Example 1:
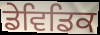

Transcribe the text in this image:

ਡੇਵਿਡਿਕ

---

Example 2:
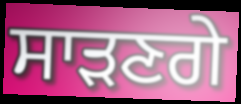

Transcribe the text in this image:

ਸਾੜਣਗੇ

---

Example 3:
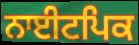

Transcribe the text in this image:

ਨਾਈਟਪਿਕ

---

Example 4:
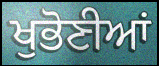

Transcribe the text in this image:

ਖੁਭੋਣੀਆਂ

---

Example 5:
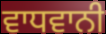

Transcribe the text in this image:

ਵਾਧਵਾਨੀ